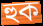
হুক